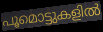
പൂമൊട്ടുകളിൽ